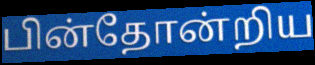
பின்தோன்றிய